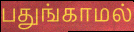
பதுங்காமல்